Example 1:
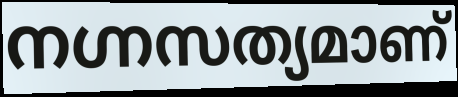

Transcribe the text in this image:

നഗ്നസത്യമാണ്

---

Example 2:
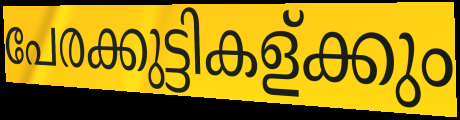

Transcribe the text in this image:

പേരക്കുട്ടികള്ക്കും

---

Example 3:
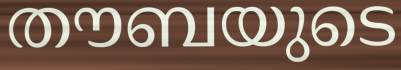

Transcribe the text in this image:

തൗബയുടെ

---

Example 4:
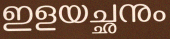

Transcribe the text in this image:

ഇളയച്ഛനും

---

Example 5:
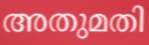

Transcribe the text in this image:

അതുമതി